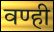
वण्ही